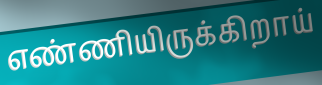
எண்ணியிருக்கிறாய்